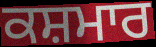
ਕਸ਼ਮਾਰ